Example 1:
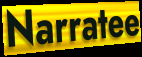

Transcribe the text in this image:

Narratee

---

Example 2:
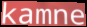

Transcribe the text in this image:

kamne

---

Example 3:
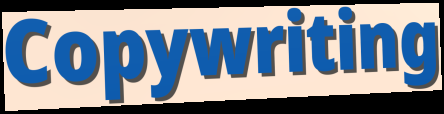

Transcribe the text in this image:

Copywriting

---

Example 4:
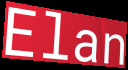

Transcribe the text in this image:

Elan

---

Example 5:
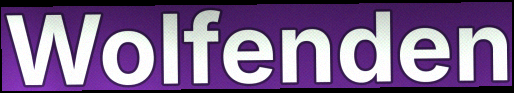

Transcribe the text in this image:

Wolfenden